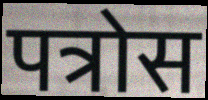
पत्रोस